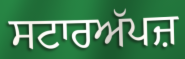
ਸਟਾਰਅੱਪਜ਼